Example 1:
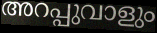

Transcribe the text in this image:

അറപ്പുവാളും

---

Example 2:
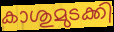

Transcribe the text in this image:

കാശുമുടക്കി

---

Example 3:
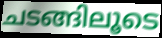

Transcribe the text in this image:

ചടങ്ങിലൂടെ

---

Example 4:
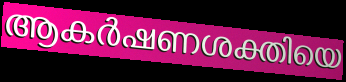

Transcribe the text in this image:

ആകർഷണശക്തിയെ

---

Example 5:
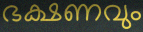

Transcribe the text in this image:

ഭക്ഷണവും